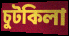
চুটকিলা